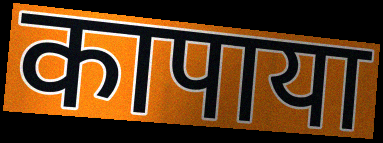
कापाया